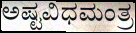
ಅಷ್ಟವಿಧಮಂತ್ರ